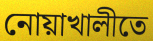
নোয়াখালীতে